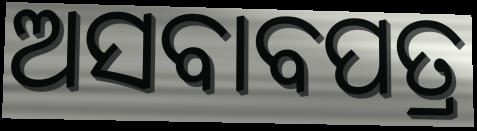
ଅସବାବପତ୍ର